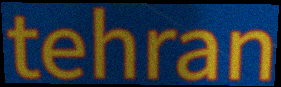
tehran